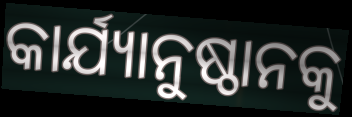
କାର୍ଯ୍ୟାନୁଷ୍ଠାନକୁ